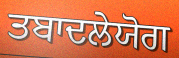
ਤਬਾਦਲੇਯੋਗ